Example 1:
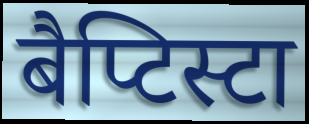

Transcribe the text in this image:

बैप्टिस्टा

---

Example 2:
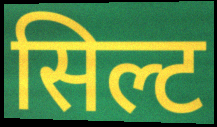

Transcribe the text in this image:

सिल्ट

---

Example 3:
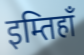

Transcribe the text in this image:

इम्तिहाँ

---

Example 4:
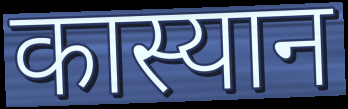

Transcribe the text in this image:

कास्यान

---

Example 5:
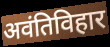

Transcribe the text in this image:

अवंतिविहार